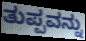
ತುಪ್ಪವನ್ನು